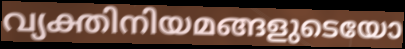
വ്യക്തിനിയമങ്ങളുടെയോ